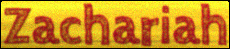
Zachariah